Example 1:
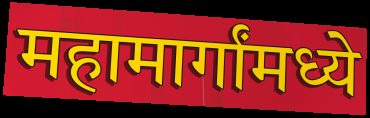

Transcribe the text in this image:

महामार्गांमध्ये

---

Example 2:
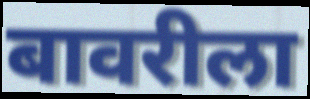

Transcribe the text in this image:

बावरीला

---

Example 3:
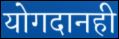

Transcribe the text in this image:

योगदानही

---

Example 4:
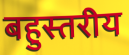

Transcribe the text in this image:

बहुस्तरीय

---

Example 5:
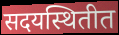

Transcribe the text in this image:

सदयस्थितीत